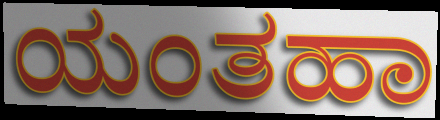
ಯಂತಹಾ